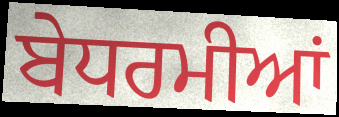
ਬੇਧਰਮੀਆਂ